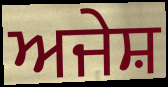
ਅਜੇਸ਼